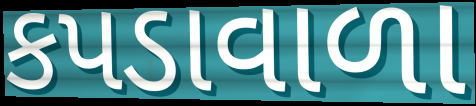
કપડાવાળા